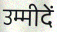
उम्‍मीदें